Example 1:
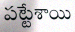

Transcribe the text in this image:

పట్టేశాయి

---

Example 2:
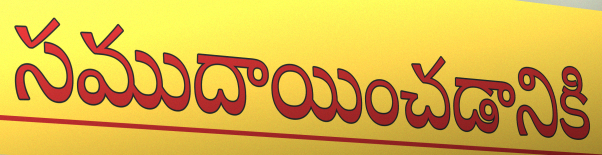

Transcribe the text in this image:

సముదాయించడానికి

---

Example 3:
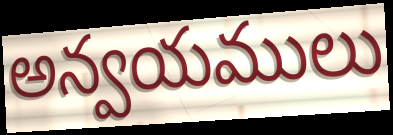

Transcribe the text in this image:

అన్వయములు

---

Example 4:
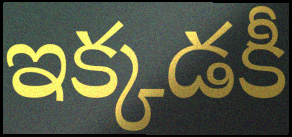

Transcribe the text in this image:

ఇక్కడకీ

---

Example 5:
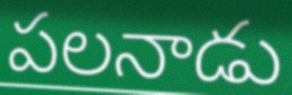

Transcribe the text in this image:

పలనాడు